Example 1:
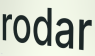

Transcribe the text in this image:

rodar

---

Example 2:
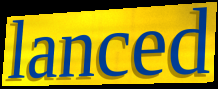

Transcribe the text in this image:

lanced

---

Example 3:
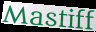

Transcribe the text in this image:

Mastiff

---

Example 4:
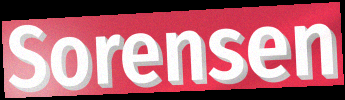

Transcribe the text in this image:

Sorensen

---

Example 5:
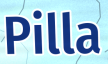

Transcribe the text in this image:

Pilla